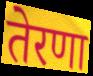
तेरणा